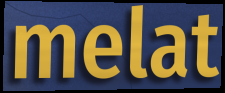
melat